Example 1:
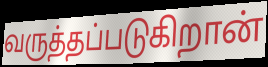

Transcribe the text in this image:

வருத்தப்படுகிறான்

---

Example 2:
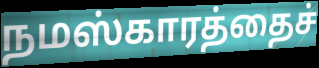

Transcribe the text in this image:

நமஸ்காரத்தைச்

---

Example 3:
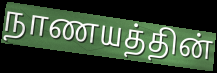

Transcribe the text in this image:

நாணயத்தின்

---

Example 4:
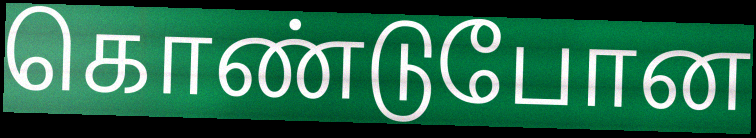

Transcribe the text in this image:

கொண்டுபோன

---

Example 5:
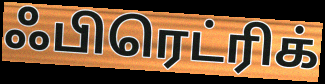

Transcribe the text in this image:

ஃபிரெட்ரிக்